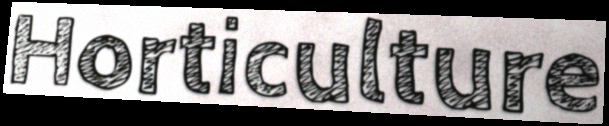
Horticulture